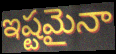
ఇష్టమైనా